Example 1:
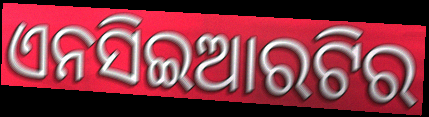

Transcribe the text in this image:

ଏନସିଇଆରଟିର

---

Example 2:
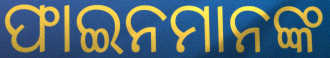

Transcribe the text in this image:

ଫାଇନମାନଙ୍କ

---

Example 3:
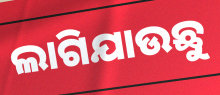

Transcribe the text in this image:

ଲାଗିଯାଉଛୁ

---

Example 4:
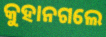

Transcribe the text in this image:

କୁହାନଗଲେ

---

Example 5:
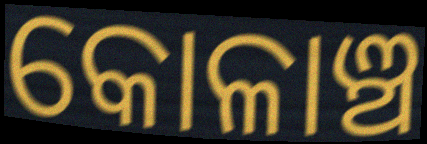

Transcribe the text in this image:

କୋଳାଞ୍ଚ